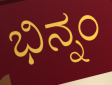
ಭಿನ್ನಂ